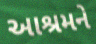
આશ્રમને